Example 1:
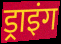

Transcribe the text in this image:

ड्राइंग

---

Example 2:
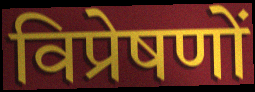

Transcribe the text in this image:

विप्रेषणों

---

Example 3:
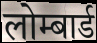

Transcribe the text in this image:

लोम्बार्ड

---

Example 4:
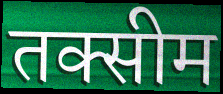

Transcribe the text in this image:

तक्सीम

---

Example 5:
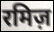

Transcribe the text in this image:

रमिज़